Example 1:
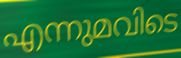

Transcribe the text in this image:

എന്നുമവിടെ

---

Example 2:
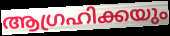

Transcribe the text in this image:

ആഗ്രഹിക്കയും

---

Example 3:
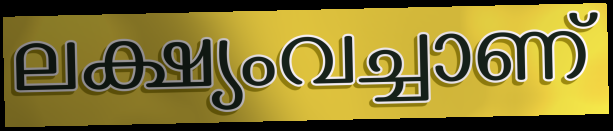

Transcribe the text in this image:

ലക്ഷ്യംവച്ചാണ്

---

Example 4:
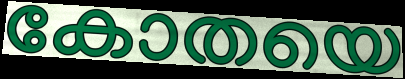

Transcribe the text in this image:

കോതയെ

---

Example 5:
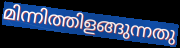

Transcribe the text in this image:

മിന്നിത്തിളങ്ങുന്നതു